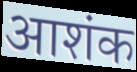
आशंक